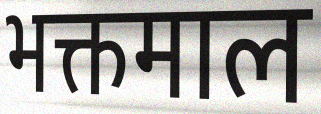
भक्तमाल